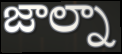
జాల్నా